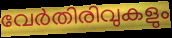
വേർതിരിവുകളും